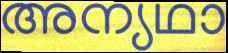
അന്യഥാ